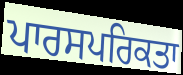
ਪਾਰਸਪਰਿਕਤਾ